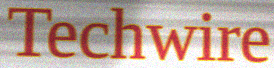
Techwire